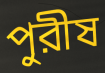
পুরীষ